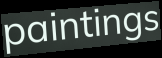
paintings